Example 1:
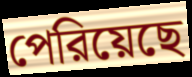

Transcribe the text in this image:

পেরিয়েছে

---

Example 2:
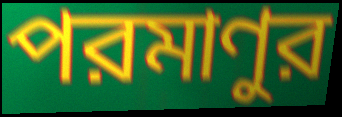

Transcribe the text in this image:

পরমাণুর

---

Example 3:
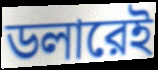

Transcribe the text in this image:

ডলারেই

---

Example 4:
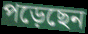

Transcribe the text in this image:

পড়েছেন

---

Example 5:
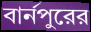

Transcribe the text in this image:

বার্নপুরের